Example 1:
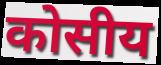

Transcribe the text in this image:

कोसीय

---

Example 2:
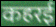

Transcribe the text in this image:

कहरई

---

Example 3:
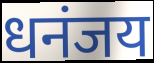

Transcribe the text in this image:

धनंजय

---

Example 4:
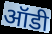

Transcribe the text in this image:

ऑडी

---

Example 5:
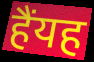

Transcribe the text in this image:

हैंयह